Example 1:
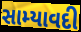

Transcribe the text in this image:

સામ્યાવદી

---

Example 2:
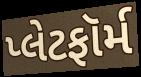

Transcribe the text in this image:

પ્લેટફૉર્મ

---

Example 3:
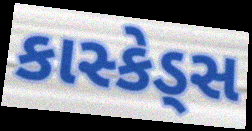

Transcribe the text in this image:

કાસ્કેડ્સ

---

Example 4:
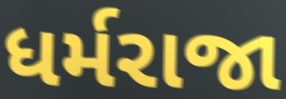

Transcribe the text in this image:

ધર્મરાજા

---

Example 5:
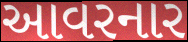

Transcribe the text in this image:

આવરનાર